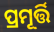
ପ୍ରମୂର୍ତ୍ତି